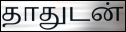
தாதுடன்